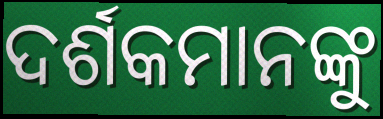
ଦର୍ଶକମାନଙ୍କୁ